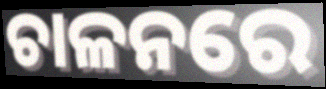
ଚାଳନରେ